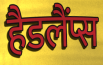
हैडलैंप्स